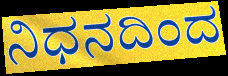
ನಿಧನದಿಂದ